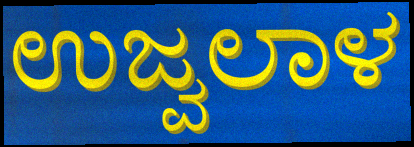
ಉಜ್ವಲಾಳ